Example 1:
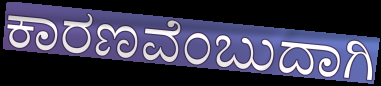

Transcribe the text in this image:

ಕಾರಣವೆಂಬುದಾಗಿ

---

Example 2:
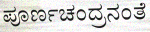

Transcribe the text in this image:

ಪೂರ್ಣಚಂದ್ರನಂತೆ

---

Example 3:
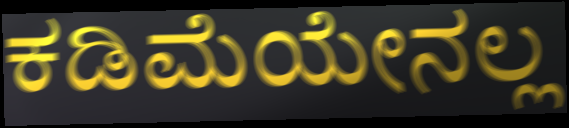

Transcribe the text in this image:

ಕಡಿಮೆಯೇನಲ್ಲ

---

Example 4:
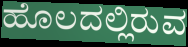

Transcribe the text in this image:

ಹೊಲದಲ್ಲಿರುವ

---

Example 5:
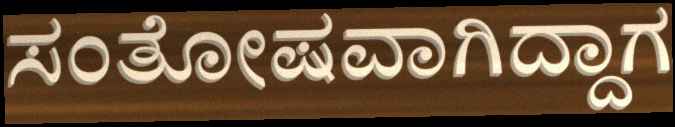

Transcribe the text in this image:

ಸಂತೋಷವಾಗಿದ್ದಾಗ